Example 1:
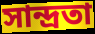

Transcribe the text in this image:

সান্দ্ৰতা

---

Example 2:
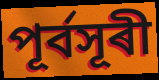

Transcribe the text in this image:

পূৰ্বসূৰী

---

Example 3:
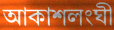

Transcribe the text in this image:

আকাশলংঘী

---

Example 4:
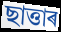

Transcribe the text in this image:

ছাত্তাৰ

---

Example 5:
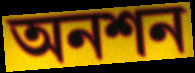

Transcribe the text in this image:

অনশন